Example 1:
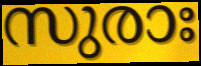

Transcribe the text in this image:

സുരാഃ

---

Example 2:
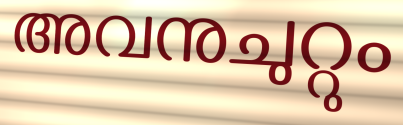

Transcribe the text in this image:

അവനുചുറ്റും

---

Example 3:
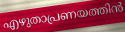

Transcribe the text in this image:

എഴുതാപ്രണയത്തിൻ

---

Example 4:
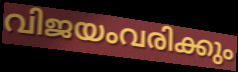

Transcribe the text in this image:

വിജയംവരിക്കും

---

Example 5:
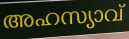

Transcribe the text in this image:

അഹസ്യാവ്